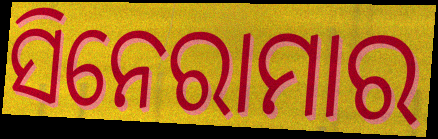
ସିନେରାମାର